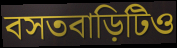
বসতবাড়িটিও